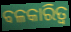
ବଳକାରିତ୍ୱ